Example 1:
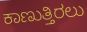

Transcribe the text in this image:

ಕಾಣುತ್ತಿರಲು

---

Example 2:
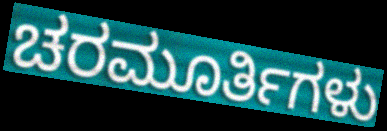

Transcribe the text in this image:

ಚರಮೂರ್ತಿಗಳು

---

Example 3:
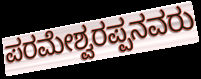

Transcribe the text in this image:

ಪರಮೇಶ್ವರಪ್ಪನವರು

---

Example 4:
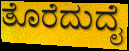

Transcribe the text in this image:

ತೊರೆದುದೈ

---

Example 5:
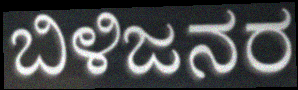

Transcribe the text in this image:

ಬಿಳಿಜನರ